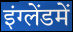
इंग्लेंडमें